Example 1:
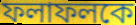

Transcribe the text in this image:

ফলাফলকে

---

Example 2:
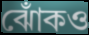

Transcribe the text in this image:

ঝোঁকও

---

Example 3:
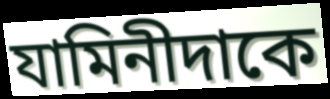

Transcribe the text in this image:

যামিনীদাকে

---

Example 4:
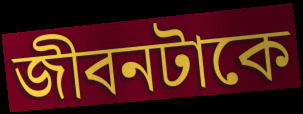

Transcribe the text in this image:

জীবনটাকে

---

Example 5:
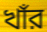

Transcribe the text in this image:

খাঁর